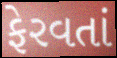
ફેરવતાં